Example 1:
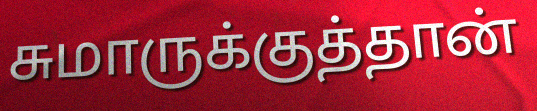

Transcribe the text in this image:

சுமாருக்குத்தான்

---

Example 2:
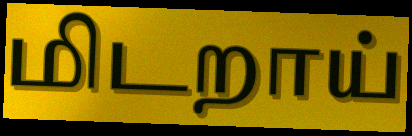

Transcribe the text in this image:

மிடறாய்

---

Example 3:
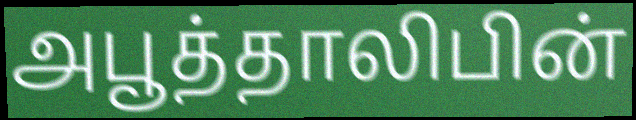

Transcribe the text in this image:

அபூத்தாலிபின்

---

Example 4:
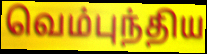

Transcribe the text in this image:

வெம்புந்திய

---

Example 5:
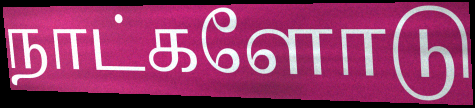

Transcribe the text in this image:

நாட்களோடு